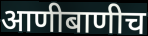
आणीबाणीच